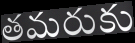
తమరుకు